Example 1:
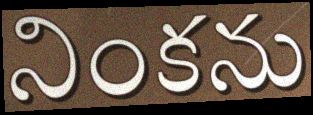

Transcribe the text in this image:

నింకను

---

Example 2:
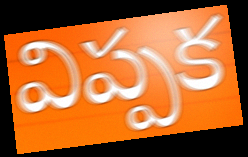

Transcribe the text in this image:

విప్పక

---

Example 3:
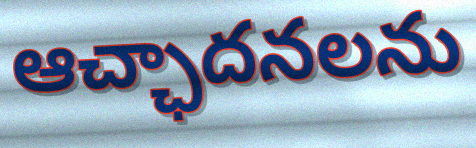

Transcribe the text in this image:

ఆచ్ఛాదనలను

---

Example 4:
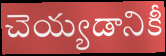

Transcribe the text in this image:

చెయ్యడానికీ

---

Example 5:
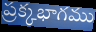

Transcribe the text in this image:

ప్రక్కభాగము